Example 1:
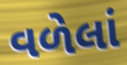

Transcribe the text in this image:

વળેલાં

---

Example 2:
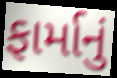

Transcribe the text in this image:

ફાર્માનું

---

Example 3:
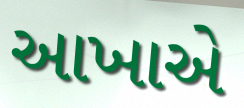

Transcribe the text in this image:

આખાએ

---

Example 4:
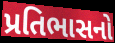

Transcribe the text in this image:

પ્રતિભાસનો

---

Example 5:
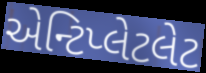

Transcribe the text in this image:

એન્ટિપ્લેટલેટ